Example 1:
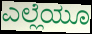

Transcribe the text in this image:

ಎಲ್ಲೆಯೂ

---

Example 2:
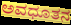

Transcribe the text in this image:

ಅವಧೂತನ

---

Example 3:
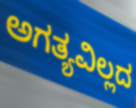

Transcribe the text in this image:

ಅಗತ್ಯವಿಲ್ಲದ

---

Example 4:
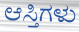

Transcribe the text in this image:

ಆಸ್ತಿಗಳು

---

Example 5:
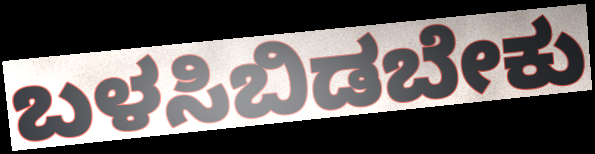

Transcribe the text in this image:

ಬಳಸಿಬಿಡಬೇಕು